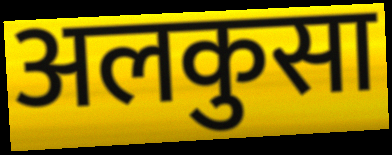
अलकुसा